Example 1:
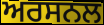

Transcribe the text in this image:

ਅਰਸਨਲ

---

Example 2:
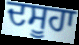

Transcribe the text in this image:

ਦਸੂਹਾ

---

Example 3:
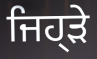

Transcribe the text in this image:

ਜਿਹ੍ੜੇ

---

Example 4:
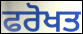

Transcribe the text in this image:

ਫਰੋਖਤ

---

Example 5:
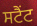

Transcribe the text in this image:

ਸਟੈਂਟ